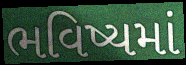
ભવિષ્યમાં